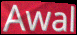
Awal